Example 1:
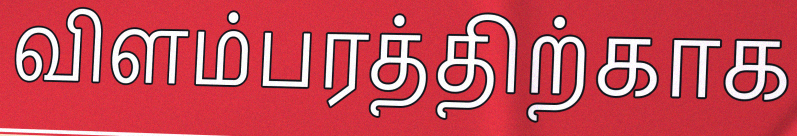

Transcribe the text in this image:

விளம்பரத்திற்காக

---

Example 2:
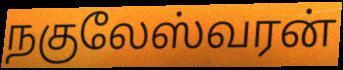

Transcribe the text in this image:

நகுலேஸ்வரன்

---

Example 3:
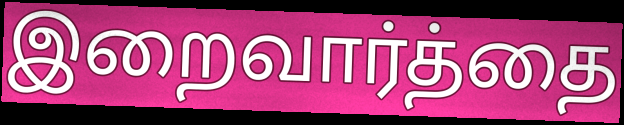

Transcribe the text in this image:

இறைவார்த்தை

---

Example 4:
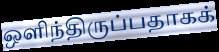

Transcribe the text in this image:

ஒளிந்திருப்பதாகக்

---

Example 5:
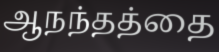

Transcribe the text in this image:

ஆநந்தத்தை